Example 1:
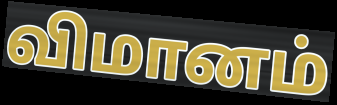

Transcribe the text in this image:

விமானம்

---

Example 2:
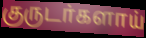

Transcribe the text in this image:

குருடர்களாய்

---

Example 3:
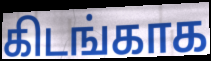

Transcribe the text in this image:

கிடங்காக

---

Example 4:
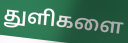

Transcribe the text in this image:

துளிகளை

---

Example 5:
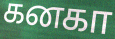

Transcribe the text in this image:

கனகா